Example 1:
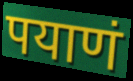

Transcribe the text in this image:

पयाणं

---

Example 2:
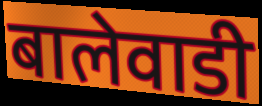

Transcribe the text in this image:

बालेवाडी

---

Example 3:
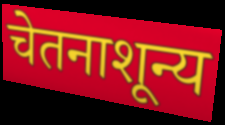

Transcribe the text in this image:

चेतनाशून्य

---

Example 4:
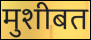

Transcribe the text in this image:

मुशीबत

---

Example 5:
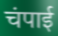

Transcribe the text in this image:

चंपाई